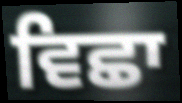
ਵਿਛਾ